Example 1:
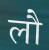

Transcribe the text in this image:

लौ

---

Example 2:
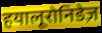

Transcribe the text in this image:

हयालूरोनिडेज़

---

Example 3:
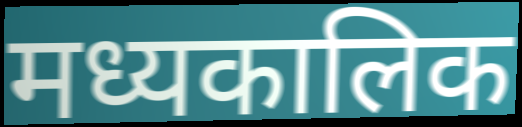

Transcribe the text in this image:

मध्यकालिक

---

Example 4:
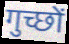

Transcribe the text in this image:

गुच्छों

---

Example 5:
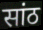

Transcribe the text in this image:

सांठ